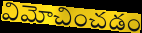
విమోచించడం